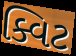
ક્વિટ